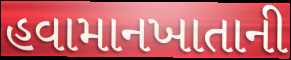
હવામાનખાતાની